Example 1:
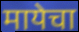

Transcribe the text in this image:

मायेचा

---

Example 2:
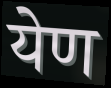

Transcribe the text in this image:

येण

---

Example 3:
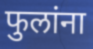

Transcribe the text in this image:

फुलांना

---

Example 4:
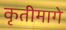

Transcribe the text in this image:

कृतीमागे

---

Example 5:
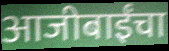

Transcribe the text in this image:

आजीबाईंचा